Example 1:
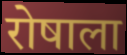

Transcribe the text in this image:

रोषाला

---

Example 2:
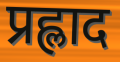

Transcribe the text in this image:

प्रह्लाद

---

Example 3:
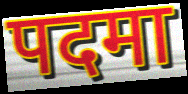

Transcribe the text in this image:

पदमा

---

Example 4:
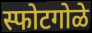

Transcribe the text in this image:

स्फोटगोळे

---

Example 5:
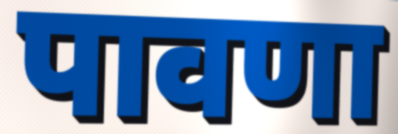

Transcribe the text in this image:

पावणा